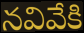
నవివేకి